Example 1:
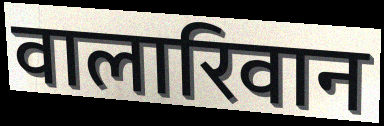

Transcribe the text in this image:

वालारिवान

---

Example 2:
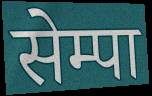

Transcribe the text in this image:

सेम्पा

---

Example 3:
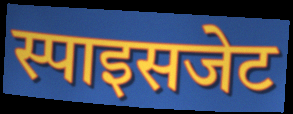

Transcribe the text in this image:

स्‍पाइसजेट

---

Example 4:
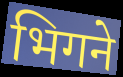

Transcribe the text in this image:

भिगने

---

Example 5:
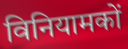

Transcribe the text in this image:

विनियामकों